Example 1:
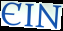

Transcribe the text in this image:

EIN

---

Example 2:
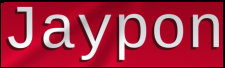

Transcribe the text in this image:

Jaypon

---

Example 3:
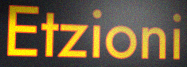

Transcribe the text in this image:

Etzioni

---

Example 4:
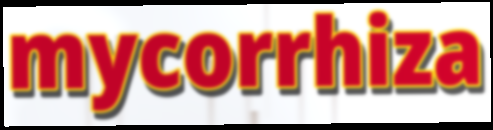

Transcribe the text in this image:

mycorrhiza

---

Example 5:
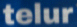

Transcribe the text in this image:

telur